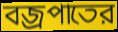
বজ্রপাতের